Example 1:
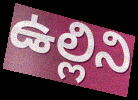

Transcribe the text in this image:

ఉల్లిని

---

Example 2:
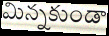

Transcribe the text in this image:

మిన్నకుండా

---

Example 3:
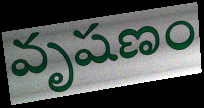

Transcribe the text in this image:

వృషణం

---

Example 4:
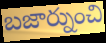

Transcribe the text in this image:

బజార్నుంచి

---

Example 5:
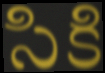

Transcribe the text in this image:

సికి